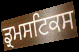
ਡ੍ਰਮਸਟਿਕਸ